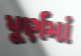
પૂર્ણમાં